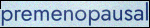
premenopausal